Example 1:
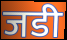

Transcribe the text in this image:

जडी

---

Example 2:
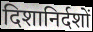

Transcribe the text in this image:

दिशानिर्दशों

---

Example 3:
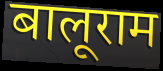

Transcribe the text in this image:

बालूराम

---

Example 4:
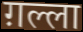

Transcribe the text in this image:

ग़ल्ला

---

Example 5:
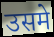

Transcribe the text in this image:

उसमे